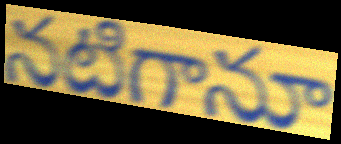
నటిగానూ